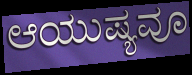
ಆಯುಷ್ಯವೂ